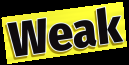
Weak